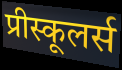
प्रीस्कूलर्स